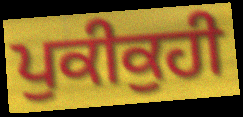
ਪੁਕੀਕੁਹੀ